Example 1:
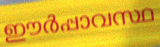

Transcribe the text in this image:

ഈർപ്പാവസ്ഥ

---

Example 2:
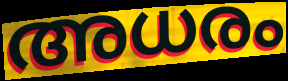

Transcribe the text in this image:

അധരം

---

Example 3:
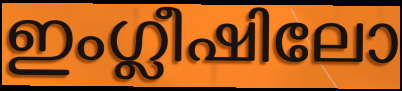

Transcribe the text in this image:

ഇംഗ്ലീഷിലോ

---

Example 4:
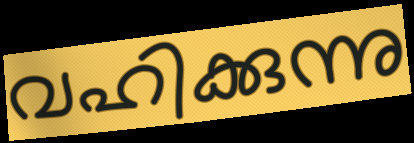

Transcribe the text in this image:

വഹിക്കുന്നു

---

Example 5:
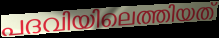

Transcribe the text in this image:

പദവിയിലെത്തിയത്